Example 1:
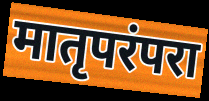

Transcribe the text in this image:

मातृपरंपरा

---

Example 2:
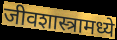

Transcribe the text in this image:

जीवशास्त्रामध्ये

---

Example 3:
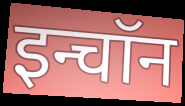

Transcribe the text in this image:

इन्चॉन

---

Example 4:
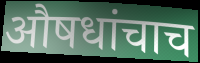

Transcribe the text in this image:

औषधांचाच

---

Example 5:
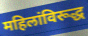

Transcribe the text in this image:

महिलांविरूद्ध